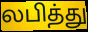
லபித்து